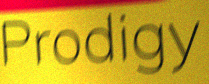
Prodigy